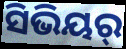
ସିଭିୟର୍